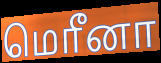
மெரீனா